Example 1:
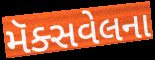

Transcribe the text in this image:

મૅક્સવેલના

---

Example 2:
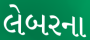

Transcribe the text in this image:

લેબરના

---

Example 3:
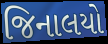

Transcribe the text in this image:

જિનાલયો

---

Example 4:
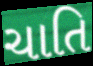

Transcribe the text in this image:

ચાતિ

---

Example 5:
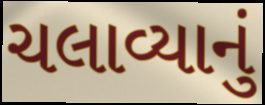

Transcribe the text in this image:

ચલાવ્યાનું